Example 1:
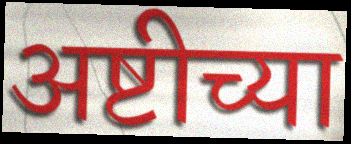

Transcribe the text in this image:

अष्टीच्या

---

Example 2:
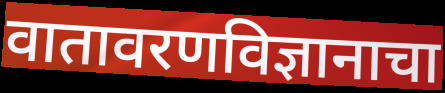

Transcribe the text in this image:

वातावरणविज्ञानाचा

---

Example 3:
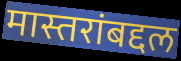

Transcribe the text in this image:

मास्तरांबद्दल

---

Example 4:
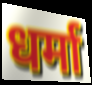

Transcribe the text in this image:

धर्मा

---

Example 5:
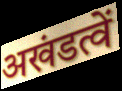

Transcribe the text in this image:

अखंडत्वें